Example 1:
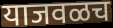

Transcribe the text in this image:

याजवळच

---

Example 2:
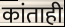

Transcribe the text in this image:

कांताही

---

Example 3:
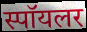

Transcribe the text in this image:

स्पॉयलर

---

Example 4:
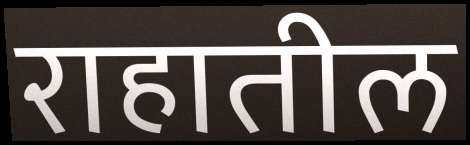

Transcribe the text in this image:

राहातील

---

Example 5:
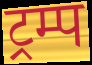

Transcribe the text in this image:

ट्रम्प